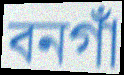
বনগাঁ